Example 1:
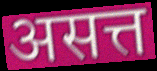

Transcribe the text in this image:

असत्त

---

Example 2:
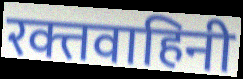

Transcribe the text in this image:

रक्तवाहिनी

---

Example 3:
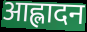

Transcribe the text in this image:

आह्लादन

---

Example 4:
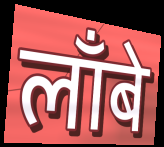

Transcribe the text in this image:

लाँबे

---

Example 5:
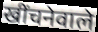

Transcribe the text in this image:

खींचनेवाले